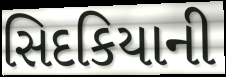
સિદકિયાની